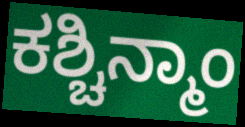
ಕಶ್ಚಿನ್ಮಾಂ